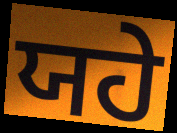
ਯਹੇ